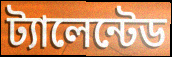
ট্যালেন্টেড